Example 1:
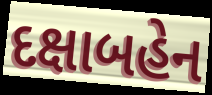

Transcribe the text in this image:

દક્ષાબહેન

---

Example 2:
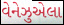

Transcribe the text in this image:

વેનેઝુએલા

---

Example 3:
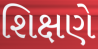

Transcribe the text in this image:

શિક્ષણે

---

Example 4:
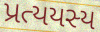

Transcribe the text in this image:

પ્રત્યયસ્ય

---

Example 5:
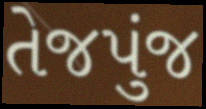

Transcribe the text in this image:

તેજપુંજ